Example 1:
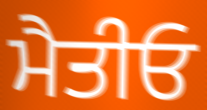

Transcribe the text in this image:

ਮੈਤੀਓ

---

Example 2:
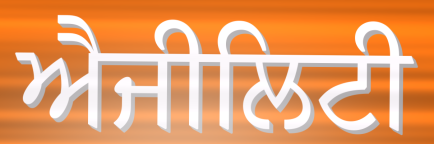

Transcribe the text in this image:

ਐਜੀਲਿਟੀ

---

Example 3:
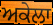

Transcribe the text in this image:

ਅਕੇਲਾ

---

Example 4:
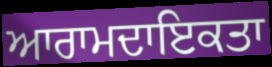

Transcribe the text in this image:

ਆਰਾਮਦਾਇਕਤਾ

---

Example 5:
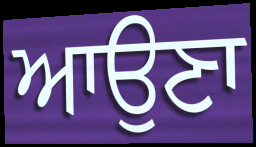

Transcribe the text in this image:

ਆਉਣਾ